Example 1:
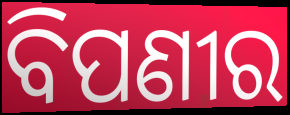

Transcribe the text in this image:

ବିପଣୀର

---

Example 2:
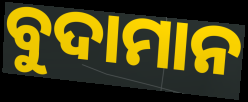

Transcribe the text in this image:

ବୁଦାମାନ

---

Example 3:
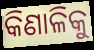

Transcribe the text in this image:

କିଣାଳିକୁ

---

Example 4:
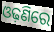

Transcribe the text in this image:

ଓଢ଼ଣିରେ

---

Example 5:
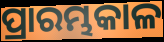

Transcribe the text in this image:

ପ୍ରାରମ୍ଭକାଳ